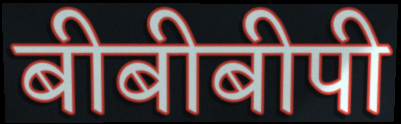
बीबीबीपी